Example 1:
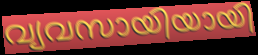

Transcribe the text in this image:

വ്യവസായിയായി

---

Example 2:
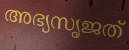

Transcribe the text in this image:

അഭ്യസൃജത്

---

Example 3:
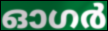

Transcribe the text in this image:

ഓഗർ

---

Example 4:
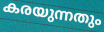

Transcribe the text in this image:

കരയുന്നതും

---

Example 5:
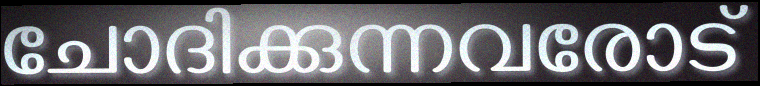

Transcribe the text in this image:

ചോദിക്കുന്നവരോട്